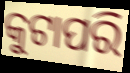
କୁଟାପରି